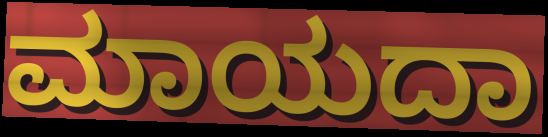
ಮಾಯದಾ